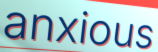
anxious